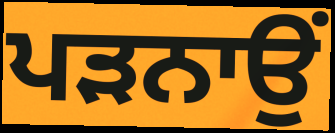
ਪਡ਼ਨਾਉਂ